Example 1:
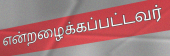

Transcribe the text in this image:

என்றழைக்கப்பட்டவர்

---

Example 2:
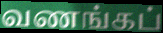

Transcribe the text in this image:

வணங்கப்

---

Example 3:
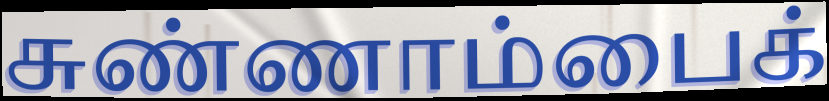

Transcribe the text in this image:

சுண்ணாம்பைக்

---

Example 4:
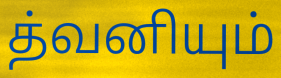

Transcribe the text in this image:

த்வனியும்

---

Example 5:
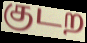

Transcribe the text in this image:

குடற